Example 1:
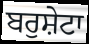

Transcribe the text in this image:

ਬਰੁਸ਼ੇਟਾ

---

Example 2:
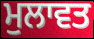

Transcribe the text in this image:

ਮੁਲਾਵਤ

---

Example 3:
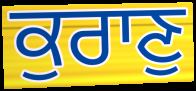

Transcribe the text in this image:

ਕੁਰਾਣੁ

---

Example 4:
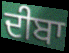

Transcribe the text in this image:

ਦੀਬਾ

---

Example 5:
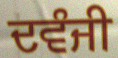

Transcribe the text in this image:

ਦਵੰਜੀ